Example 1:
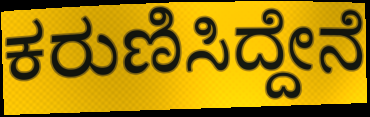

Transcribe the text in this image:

ಕರುಣಿಸಿದ್ದೇನೆ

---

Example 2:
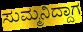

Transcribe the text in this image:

ಸುಮ್ಮನಿದ್ದಾಗ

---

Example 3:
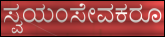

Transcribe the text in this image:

ಸ್ವಯಂಸೇವಕರೂ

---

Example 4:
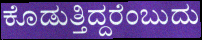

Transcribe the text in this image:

ಕೊಡುತ್ತಿದ್ದರೆಂಬುದು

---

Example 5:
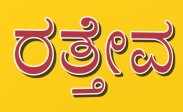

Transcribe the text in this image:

ರತ್ತೇವ